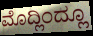
ಮೊದ್ಲಿಂದ್ಲೂ